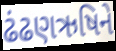
ઢંઢણઋષિને